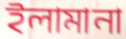
ইলামানা